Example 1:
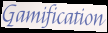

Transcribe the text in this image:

Gamification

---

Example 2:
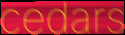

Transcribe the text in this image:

cedars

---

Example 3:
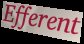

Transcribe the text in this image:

Efferent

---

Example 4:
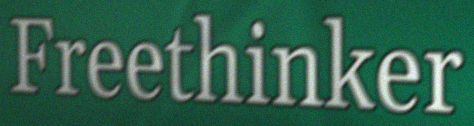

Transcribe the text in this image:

Freethinker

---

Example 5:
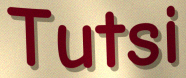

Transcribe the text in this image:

Tutsi